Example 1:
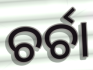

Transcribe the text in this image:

ଚର୍ଚା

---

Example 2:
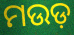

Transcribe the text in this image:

ମଉଡ଼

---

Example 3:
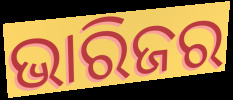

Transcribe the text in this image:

ଭାରିଜର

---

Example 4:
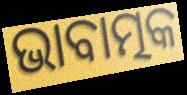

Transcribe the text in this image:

ଭାବାତ୍ମକ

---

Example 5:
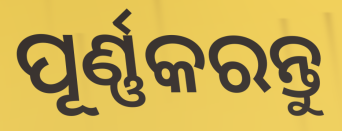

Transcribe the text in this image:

ପୂର୍ଣ୍ଣକରନ୍ତୁ